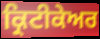
ਕ੍ਰਿਟੀਕੇਅਰ